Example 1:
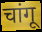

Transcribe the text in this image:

चांगू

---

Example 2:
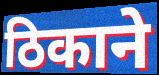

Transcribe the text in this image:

ठिकाने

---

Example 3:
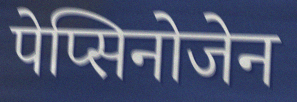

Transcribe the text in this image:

पेप्सिनोजेन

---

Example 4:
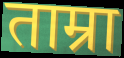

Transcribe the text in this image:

ताम्रा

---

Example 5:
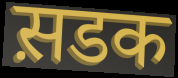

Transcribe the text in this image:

स़डक